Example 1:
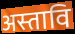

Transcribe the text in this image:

अस्तावि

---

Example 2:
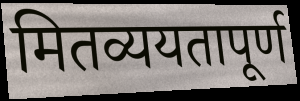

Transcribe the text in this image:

मितव्ययतापूर्ण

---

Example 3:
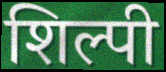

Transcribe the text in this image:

शिल्पी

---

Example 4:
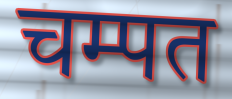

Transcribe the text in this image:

चम्पत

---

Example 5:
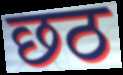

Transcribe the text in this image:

छठ